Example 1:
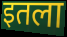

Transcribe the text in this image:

इतला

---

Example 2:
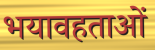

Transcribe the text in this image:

भयावहताओं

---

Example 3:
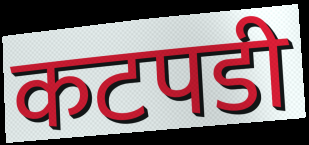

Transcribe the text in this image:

कटपडी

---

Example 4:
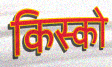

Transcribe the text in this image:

किस्को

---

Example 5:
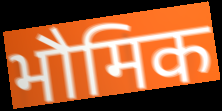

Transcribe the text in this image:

भौमिक